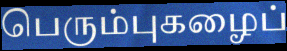
பெரும்புகழைப்